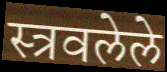
स्त्रवलेले